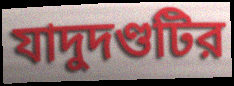
যাদুদণ্ডটির